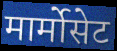
मार्मोसेट